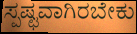
ಸ್ಪಷ್ಟವಾಗಿರಬೇಕು